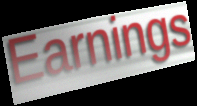
Earnings